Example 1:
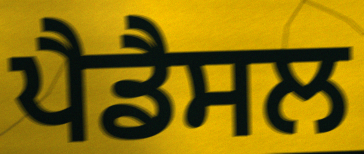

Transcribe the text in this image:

ਪੈਡੈਸਲ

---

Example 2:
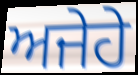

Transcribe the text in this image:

ਅਜੇਹੇ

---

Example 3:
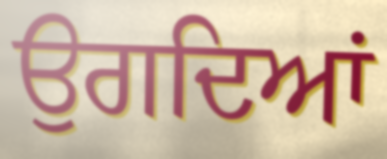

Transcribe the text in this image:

ਉਗਦਿਆਂ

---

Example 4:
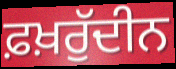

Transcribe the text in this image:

ਫ਼ਖ਼ਰੁੱਦੀਨ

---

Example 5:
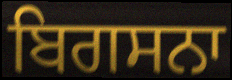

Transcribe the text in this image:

ਬਿਗਸਨਾ